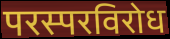
परस्परविरोध